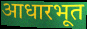
आधारभूत